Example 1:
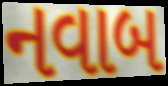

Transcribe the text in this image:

નવાબ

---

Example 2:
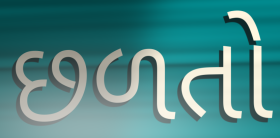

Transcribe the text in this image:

છળતો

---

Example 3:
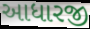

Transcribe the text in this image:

આધારજી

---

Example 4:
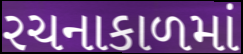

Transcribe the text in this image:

રચનાકાળમાં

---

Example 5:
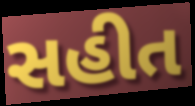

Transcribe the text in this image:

સહીત